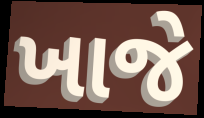
ખાજે